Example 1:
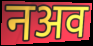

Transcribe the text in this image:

नअव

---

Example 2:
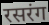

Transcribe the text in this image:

रसरंग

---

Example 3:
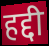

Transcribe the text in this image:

हद्दी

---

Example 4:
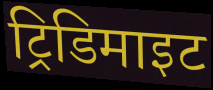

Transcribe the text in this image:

ट्रिडिमाइट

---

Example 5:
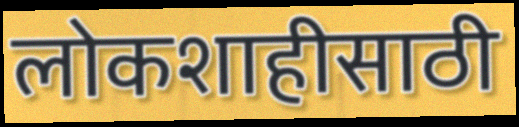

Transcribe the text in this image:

लोकशाहीसाठी